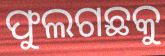
ଫୁଲଗଛକୁ